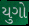
યુગો